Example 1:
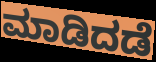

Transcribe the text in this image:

ಮಾಡಿದಡೆ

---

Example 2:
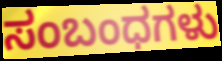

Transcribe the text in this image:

ಸಂಬಂಧಗಳು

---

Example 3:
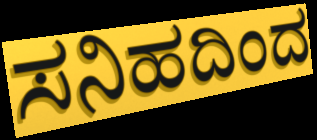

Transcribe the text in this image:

ಸನಿಹದಿಂದ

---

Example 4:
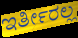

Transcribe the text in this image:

ಇರ್ತೀರಲ್ಲ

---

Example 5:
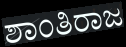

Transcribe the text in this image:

ಶಾಂತಿರಾಜ